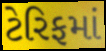
ટેરિફમાં